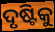
ଦୃଷ୍ଟିକୁ